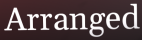
Arranged